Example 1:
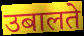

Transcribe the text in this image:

उबालते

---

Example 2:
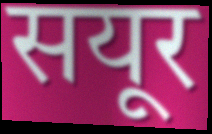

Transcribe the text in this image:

सयूर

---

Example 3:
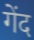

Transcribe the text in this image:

गेंद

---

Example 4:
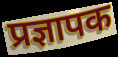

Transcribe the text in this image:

प्रज्ञापक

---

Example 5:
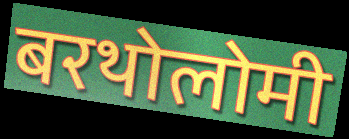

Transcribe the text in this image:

बरथोलोमी